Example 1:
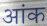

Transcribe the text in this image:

आंक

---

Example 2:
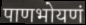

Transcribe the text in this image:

पाणभोयणं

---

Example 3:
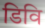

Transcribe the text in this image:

डिवि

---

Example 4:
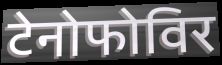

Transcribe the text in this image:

टेनोफोविर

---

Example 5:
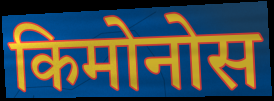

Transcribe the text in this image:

किमोनोस